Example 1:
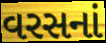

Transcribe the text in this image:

વરસનાં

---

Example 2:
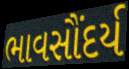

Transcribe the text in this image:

ભાવસૌંદર્ય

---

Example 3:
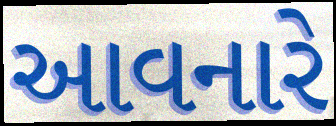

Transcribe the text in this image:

આવનારે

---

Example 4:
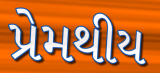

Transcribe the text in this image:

પ્રેમથીય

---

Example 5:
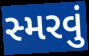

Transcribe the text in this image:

સ્મરવું